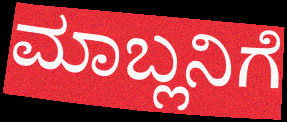
ಮಾಬ್ಲನಿಗೆ